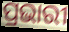
ପ୍ରଭାରୀ